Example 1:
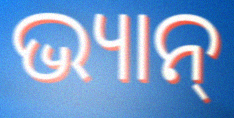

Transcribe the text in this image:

ଭ୍ୟାନ୍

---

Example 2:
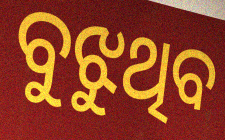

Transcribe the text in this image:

ବୁଝୁଥିବ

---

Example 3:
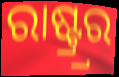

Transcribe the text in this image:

ରାଷ୍ଟ୍ର୍ରର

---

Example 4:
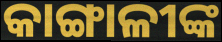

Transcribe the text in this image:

କାଙ୍ଗାଳୀଙ୍କ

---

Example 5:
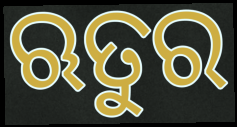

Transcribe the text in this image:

ଋତୁର